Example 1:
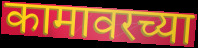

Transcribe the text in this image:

कामावरच्या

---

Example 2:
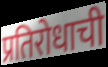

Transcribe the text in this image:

प्रतिरोधाची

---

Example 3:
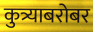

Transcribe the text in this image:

कुत्र्याबरोबर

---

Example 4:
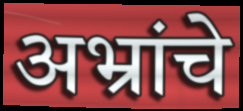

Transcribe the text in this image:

अभ्रांचे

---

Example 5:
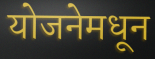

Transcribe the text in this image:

योजनेमधून